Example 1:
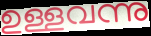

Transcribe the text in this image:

ഉള്ളവന്നു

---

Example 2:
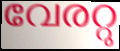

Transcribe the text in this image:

വേരറ്റു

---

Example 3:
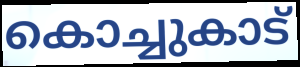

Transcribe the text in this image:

കൊച്ചുകാട്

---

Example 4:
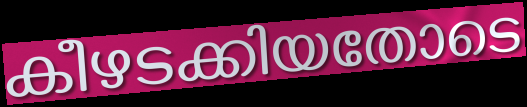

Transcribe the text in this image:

കീഴടക്കിയതോടെ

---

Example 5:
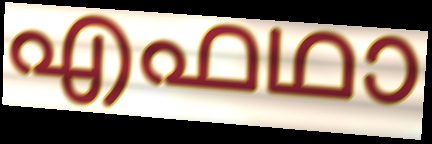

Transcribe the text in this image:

എഫഥാ